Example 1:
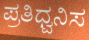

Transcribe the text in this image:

ಪ್ರತಿಧ್ವನಿಸ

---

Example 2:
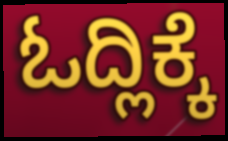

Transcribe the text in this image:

ಓದ್ಲಿಕ್ಕೆ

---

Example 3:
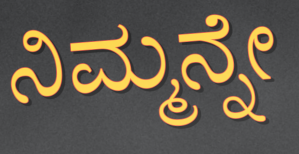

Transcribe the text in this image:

ನಿಮ್ಮನ್ನೇ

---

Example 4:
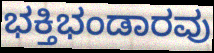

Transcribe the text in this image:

ಭಕ್ತಿಭಂಡಾರವು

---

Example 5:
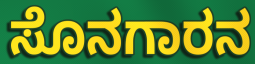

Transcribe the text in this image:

ಸೊನಗಾರನ